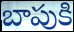
బాపుకి